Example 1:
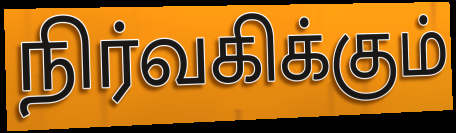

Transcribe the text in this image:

நிர்வகிக்கும்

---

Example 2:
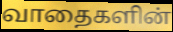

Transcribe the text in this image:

வாதைகளின்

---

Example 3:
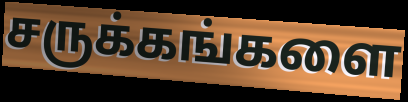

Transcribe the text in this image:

சருக்கங்களை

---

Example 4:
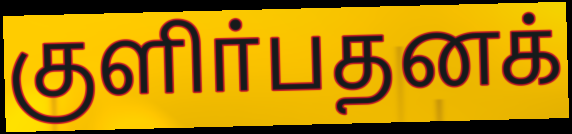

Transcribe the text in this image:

குளிர்பதனக்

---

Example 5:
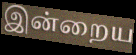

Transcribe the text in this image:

இன்றைய